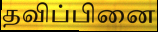
தவிப்பினை